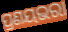
ପ୍ରଣୟଭରା